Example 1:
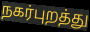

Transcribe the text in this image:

நகர்புறத்து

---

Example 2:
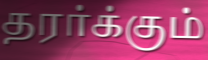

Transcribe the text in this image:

தரர்க்கும்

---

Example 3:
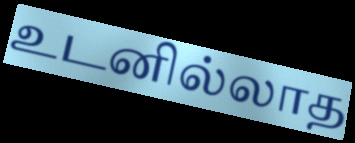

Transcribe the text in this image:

உடனில்லாத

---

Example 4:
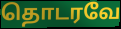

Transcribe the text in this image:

தொடரவே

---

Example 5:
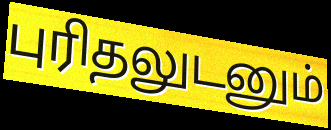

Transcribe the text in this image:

புரிதலுடனும்